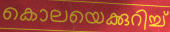
കൊലയെക്കുറിച്ച്